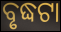
ବୃଦ୍ଧଟା